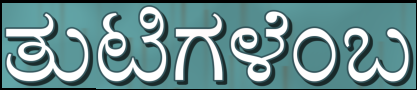
ತುಟಿಗಳೆಂಬ